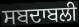
ਸਬਦਾਬਲੀ